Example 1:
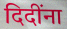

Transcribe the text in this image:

दिदींना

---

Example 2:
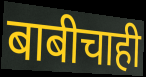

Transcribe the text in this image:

बाबीचाही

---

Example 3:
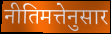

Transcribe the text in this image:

नीतिमत्तेनुसार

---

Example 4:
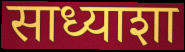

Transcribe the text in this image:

साध्याशा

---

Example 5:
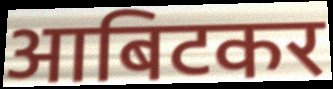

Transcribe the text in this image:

आबिटकर